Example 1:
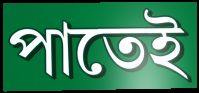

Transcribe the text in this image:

পাতেই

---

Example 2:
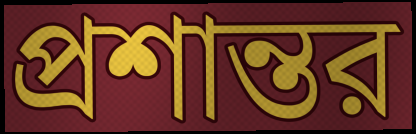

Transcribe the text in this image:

প্রশান্তর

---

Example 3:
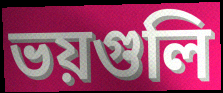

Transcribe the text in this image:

ভয়গুলি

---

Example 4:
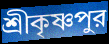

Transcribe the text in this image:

শ্রীকৃষ্ণপুর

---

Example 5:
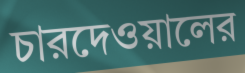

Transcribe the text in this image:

চারদেওয়ালের